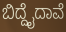
ಬಿದ್ದೈದಾವೆ